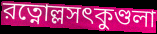
রত্নোল্লসৎকুণ্ডলা